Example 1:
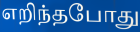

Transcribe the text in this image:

எறிந்தபோது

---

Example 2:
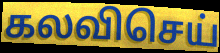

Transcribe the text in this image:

கலவிசெய்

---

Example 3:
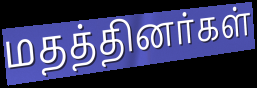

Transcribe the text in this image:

மதத்தினர்கள்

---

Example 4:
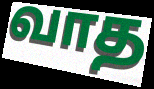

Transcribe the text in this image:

வாத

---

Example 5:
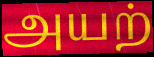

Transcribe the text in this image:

அயற்